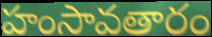
హంసావతారం